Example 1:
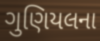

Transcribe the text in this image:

ગુણિયલના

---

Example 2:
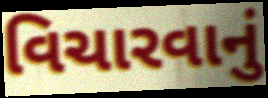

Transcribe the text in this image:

વિચારવાનું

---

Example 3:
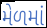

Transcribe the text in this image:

મેળમાં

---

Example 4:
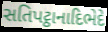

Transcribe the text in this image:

સતિપટ્ઠાનાદિભેદે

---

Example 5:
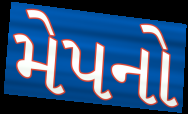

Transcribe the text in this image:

મેપનો